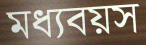
মধ্যবয়স